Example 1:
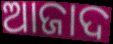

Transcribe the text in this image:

ଆଜାଦ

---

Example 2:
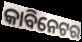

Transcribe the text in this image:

କାବିନେଟର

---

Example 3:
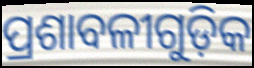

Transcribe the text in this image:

ପ୍ରଶାବଳୀଗୁଡ଼ିକ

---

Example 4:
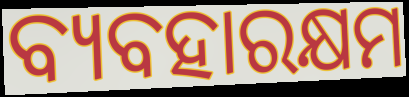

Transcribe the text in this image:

ବ୍ୟବହାରକ୍ଷମ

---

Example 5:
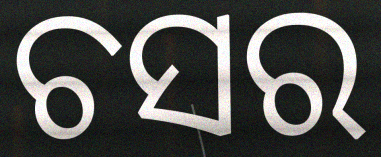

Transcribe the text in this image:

ଚସର